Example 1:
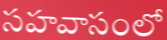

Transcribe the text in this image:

సహవాసంలో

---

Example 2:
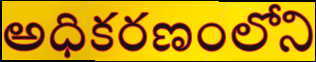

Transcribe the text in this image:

అధికరణంలోని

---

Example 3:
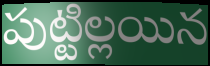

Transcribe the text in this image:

పుట్టిల్లయిన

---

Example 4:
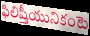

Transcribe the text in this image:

ఫిలిష్తీయునికంటె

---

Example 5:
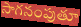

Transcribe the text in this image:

సాగనంపుతూ